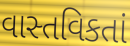
વાસ્તવિકતાં